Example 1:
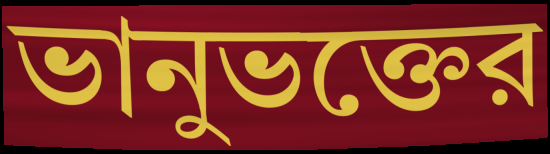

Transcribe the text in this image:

ভানুভক্তের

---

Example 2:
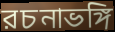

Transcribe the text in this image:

রচনাভঙ্গি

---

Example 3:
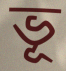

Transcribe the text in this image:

ভূ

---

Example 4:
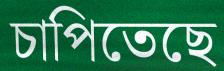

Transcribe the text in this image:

চাপিতেছে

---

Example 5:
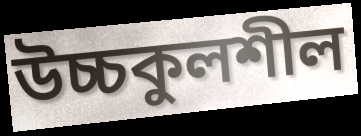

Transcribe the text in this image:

উচ্চকুলশীল